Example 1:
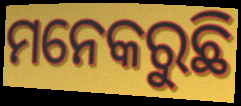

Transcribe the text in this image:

ମନେକରୁଛି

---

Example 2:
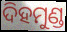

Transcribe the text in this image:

ଦିହମୁଣ୍ଡ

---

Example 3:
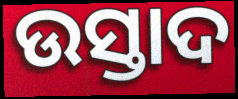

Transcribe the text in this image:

ଉସ୍ତାଦ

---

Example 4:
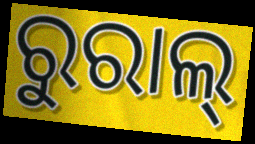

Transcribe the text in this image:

ରୁରାଲ୍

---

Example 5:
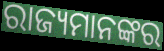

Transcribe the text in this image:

ରାଜ୍ୟମାନଙ୍କର